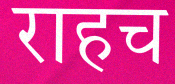
राहच